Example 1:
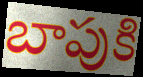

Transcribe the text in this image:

బాపుకి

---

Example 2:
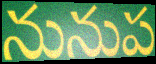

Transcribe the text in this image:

నునుప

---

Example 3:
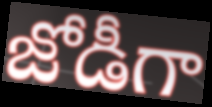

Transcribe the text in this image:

జోడీగా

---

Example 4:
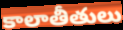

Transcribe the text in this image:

కాలాతీతులు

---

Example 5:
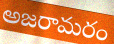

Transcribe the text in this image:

అజరామరం